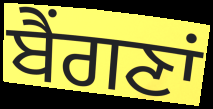
ਬੈਂਗਣਾਂ